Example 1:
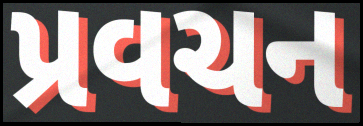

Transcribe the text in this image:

પ્રવચન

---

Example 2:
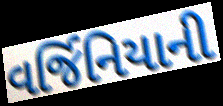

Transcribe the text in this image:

વર્જિનિયાની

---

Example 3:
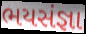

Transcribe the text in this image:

ભયસંજ્ઞા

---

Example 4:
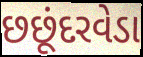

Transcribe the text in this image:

છછૂંદરવેડા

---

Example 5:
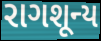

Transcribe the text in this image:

રાગશૂન્ય